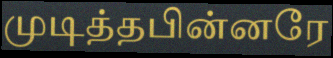
முடித்தபின்னரே